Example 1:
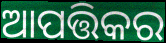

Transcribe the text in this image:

ଆପତ୍ତିକର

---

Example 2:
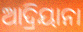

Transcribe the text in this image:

ଆଦ୍ରିୟାନା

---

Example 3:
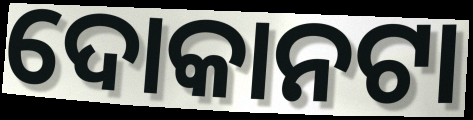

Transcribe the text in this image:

ଦୋକାନଟା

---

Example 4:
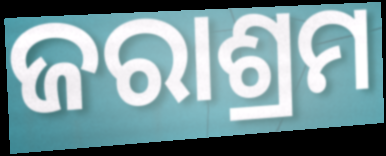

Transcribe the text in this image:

ଜରାଶ୍ରମ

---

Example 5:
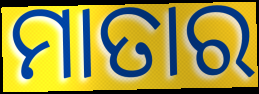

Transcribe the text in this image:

ମାତାର